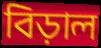
বিড়াল